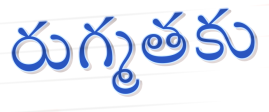
రుగ్మతకు